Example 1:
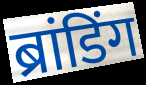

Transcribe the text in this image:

ब्रांडिंग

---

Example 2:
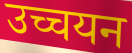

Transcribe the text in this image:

उच्चयन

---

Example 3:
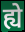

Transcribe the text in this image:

ह्ये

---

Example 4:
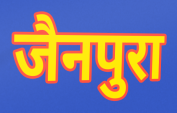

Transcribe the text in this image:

जैनपुरा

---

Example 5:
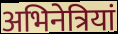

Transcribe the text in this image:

अभिनेत्रियां